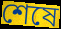
শেষে